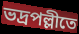
ভদ্রপল্লীতে